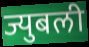
ज्युबली